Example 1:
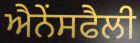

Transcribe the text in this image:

ਐਨੇਂਸਫੈਲੀ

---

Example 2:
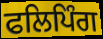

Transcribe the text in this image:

ਫਲਿਪਿੰਗ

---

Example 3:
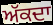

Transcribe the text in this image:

ਅੱਕਦਾ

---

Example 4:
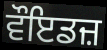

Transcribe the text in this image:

ਵੌਇਡਜ਼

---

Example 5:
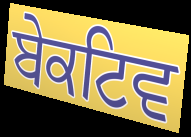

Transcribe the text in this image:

ਬੇਕਟਿਵ